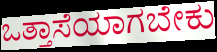
ಒತ್ತಾಸೆಯಾಗಬೇಕು